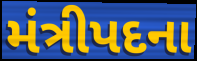
મંત્રીપદના